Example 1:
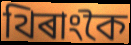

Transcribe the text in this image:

থিৰাংকৈ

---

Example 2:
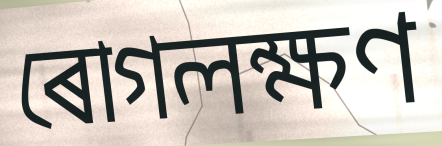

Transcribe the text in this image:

ৰোগলক্ষণ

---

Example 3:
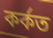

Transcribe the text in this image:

কৰ্কত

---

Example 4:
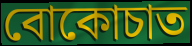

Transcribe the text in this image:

বোকোচাত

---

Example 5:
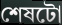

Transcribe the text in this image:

শেষটো